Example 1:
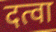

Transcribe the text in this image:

दत्वा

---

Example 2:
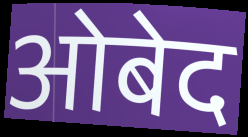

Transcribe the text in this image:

ओबेद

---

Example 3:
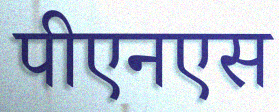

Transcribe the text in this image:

पीएनएस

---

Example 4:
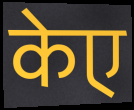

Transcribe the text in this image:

केए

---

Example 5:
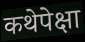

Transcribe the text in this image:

कथेपेक्षा